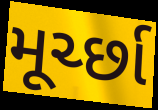
મૂર્ચ્છા